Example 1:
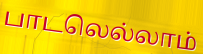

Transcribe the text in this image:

பாடலெல்லாம்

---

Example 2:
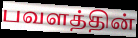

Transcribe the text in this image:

பவளத்தின்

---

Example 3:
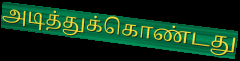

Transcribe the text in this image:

அடித்துக்கொண்டது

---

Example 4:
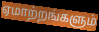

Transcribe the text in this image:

ஏமாற்றங்களும்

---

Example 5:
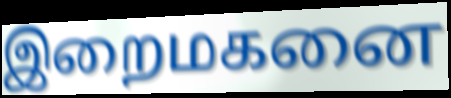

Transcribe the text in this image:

இறைமகனை